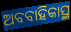
ଅବବାହିକାସ୍ଥ